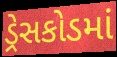
ડ્રેસકોડમાં